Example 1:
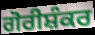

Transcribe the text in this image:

ਗੋਰੀਸ਼ੰਕਰ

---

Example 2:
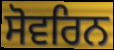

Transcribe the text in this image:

ਸੋਵਰਿਨ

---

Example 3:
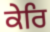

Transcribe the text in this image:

ਕੇਰਿ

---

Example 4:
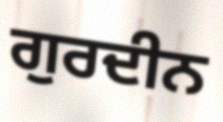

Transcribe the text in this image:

ਗੁਰਦੀਨ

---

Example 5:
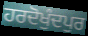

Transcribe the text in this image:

ਹਰਦੋਖੁੰਦਪੁਰ